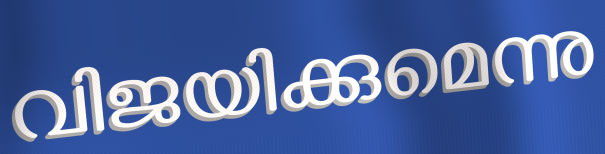
വിജയിക്കുമെന്നു